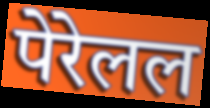
पेरेलल